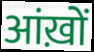
आंख़ों